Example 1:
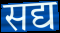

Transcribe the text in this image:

सद्य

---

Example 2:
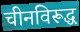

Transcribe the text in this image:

चीनविरूद्ध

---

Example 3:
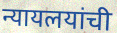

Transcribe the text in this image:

न्यायलयांची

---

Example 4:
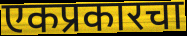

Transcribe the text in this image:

एकप्रकारचा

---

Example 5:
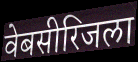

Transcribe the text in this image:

वेबसीरिजला